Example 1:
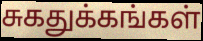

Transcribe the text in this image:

சுகதுக்கங்கள்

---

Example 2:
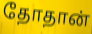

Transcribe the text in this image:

தோதான்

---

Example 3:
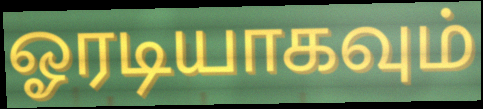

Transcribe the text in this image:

ஓரடியாகவும்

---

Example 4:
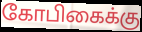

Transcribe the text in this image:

கோபிகைக்கு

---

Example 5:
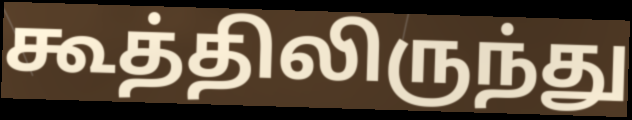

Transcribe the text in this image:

கூத்திலிருந்து